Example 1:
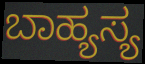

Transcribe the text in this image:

ಬಾಹ್ಯಸ್ಯ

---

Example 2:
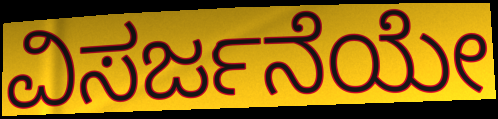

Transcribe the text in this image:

ವಿಸರ್ಜನೆಯೇ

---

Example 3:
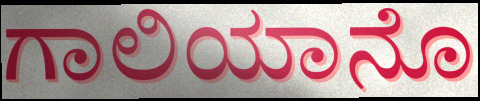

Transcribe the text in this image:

ಗಾಲಿಯಾನೊ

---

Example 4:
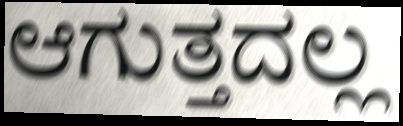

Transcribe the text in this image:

ಆಗುತ್ತದಲ್ಲ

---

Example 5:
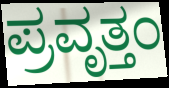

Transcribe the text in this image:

ಪ್ರವೃತ್ತಂ